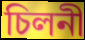
চিলনী